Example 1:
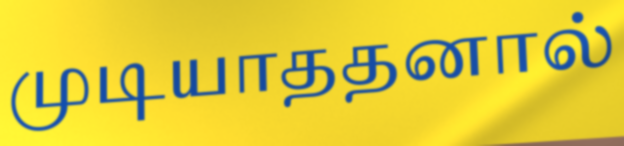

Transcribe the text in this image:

முடியாததனால்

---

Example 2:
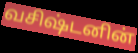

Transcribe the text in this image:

வசிஷ்டனின்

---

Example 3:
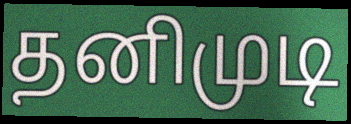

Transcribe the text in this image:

தனிமுடி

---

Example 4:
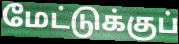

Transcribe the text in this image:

மேட்டுக்குப்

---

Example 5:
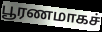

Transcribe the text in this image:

பூரணமாகச்